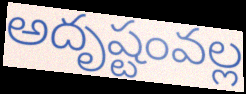
అదృష్టంవల్ల